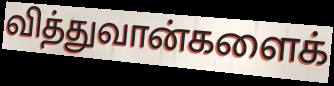
வித்துவான்களைக்